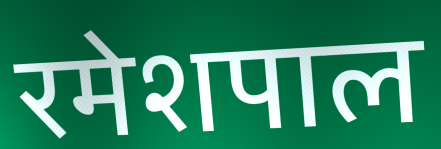
रमेशपाल